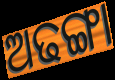
ଅଢଙ୍ଗା